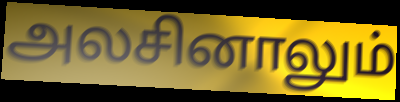
அலசினாலும்